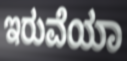
ಇರುವೆಯಾ